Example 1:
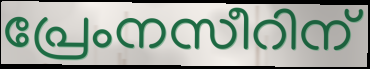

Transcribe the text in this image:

പ്രേംനസീറിന്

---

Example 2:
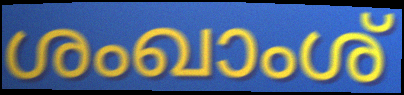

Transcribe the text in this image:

ശംഖാംശ്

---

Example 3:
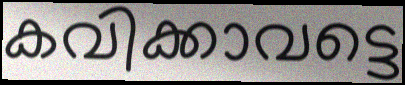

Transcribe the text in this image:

കവിക്കാവട്ടെ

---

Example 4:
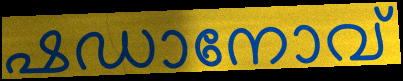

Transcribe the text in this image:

ഷഡാനോവ്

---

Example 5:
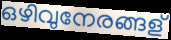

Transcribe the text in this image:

ഒഴിവുനേരങ്ങള്